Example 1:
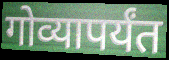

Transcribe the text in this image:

गोव्यापर्यंत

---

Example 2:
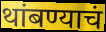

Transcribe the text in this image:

थांबण्याचं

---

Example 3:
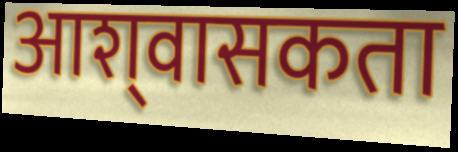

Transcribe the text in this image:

आश्वासकता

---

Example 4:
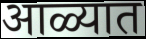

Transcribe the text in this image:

आळ्यात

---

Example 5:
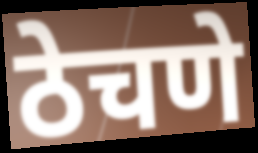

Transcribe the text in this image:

ठेचणे